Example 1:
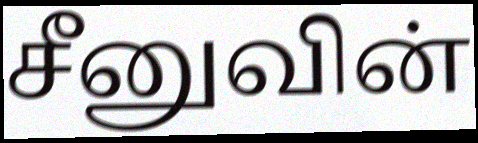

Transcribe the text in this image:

சீனுவின்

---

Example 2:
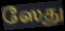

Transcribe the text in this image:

ஸேது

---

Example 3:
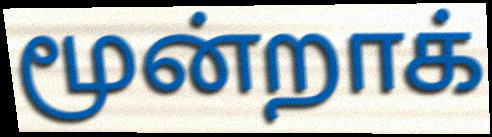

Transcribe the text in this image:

மூன்றாக்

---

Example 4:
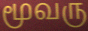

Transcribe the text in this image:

மூவரு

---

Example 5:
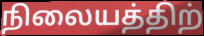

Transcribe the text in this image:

நிலையத்திற்